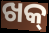
ଖକ୍